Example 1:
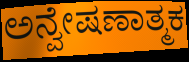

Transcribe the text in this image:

ಅನ್ವೇಷಣಾತ್ಮಕ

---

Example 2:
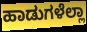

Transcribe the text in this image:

ಹಾಡುಗಳೆಲ್ಲಾ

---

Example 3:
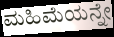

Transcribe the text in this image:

ಮಹಿಮೆಯನ್ನೇ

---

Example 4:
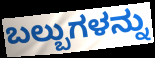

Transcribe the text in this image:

ಬಲ್ಬುಗಳನ್ನು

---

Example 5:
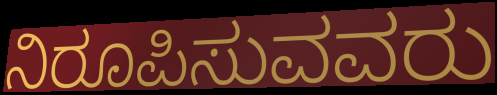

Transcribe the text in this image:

ನಿರೂಪಿಸುವವರು